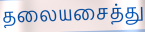
தலையசைத்து